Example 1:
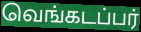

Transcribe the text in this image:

வெங்கடப்பர்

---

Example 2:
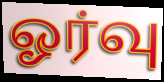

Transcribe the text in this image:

ஓர்வு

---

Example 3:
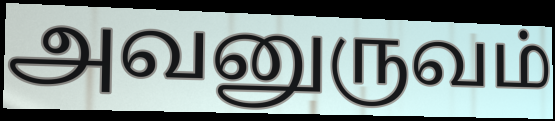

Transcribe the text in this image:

அவனுருவம்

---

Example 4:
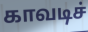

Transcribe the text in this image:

காவடிச்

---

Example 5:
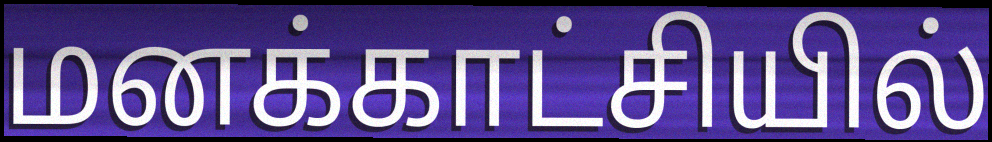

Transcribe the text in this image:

மனக்காட்சியில்